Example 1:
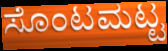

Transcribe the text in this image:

ಸೊಂಟಮಟ್ಟ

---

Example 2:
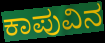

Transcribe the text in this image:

ಕಾಪುವಿನ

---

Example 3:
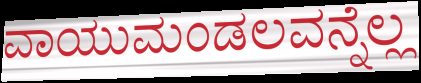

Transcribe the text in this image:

ವಾಯುಮಂಡಲವನ್ನೆಲ್ಲ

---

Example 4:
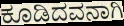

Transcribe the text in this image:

ಕೂಡಿದವನಾಗಿ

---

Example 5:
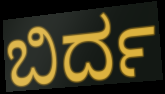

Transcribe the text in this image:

ಬಿರ್ದ